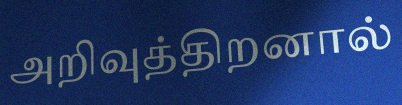
அறிவுத்திறனால்